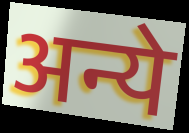
अन्ये